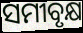
ସମୀବୃକ୍ଷ